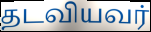
தடவியவர்